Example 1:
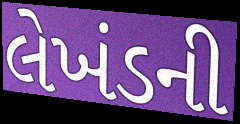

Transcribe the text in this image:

લેખંડની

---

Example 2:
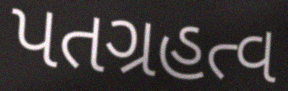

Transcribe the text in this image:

પતગ્રહત્વ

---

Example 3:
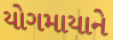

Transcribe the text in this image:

યોગમાયાને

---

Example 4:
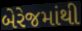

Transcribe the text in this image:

બેરેજમાંથી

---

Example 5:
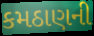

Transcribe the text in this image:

કમઠાણની